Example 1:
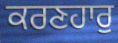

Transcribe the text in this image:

ਕਰਣਹਾਰੁ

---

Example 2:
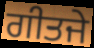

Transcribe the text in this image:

ਗੀਤਜੇ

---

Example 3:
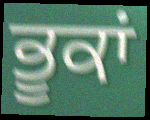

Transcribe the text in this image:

ਭੂਕਾਂ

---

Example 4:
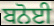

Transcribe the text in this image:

ਬਨੋਈ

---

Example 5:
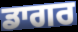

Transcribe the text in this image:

ਡਾਗਰ